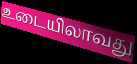
உடையிலாவது